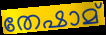
തേഷാമ്